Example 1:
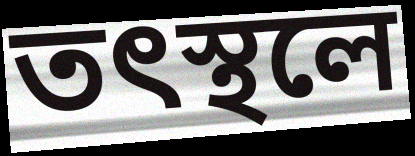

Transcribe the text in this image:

তৎস্থলে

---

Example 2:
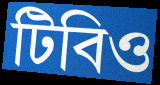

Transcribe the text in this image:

টিবিও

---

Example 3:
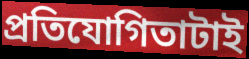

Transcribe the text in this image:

প্রতিযোগিতাটাই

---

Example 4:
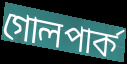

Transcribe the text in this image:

গোলপার্ক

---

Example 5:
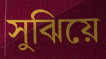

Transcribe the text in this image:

সুঝিয়ে